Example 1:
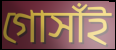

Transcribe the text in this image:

গোসাঁই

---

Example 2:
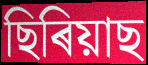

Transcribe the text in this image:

ছিৰিয়াছ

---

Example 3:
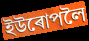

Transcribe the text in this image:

ইউৰোপলৈ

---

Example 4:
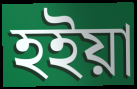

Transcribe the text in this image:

হইয়া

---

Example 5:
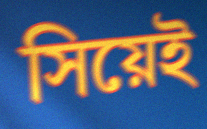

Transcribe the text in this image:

সিয়েই